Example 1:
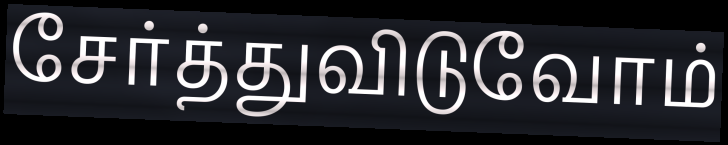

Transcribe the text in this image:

சேர்த்துவிடுவோம்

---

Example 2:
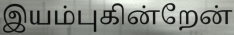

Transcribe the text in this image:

இயம்புகின்றேன்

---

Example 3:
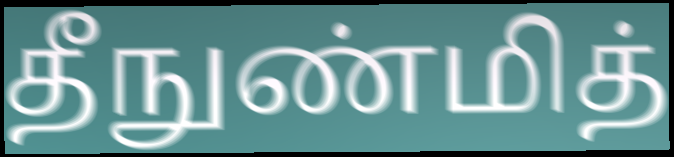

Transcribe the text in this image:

தீநுண்மித்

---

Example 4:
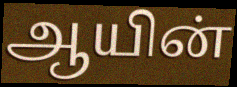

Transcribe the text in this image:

ஆயின்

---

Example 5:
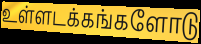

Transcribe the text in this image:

உள்ளடக்கங்களோடு